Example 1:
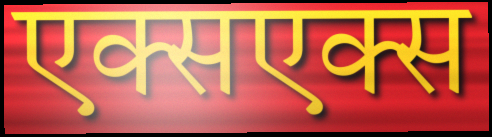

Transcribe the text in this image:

एक्सएक्स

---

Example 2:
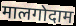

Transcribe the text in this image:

मालगोदाम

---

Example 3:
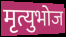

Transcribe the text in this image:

मृत्युभोज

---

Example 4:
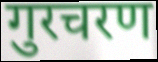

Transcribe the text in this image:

गुरचरण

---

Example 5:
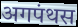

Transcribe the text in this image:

अगपंथस